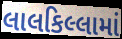
લાલકિલ્લામાં